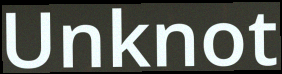
Unknot